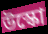
উস্কো